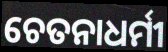
ଚେତନାଧର୍ମୀ